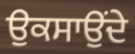
ਉਕਸਾਉਂਦੇ